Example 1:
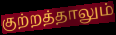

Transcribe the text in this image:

குற்றத்தாலும்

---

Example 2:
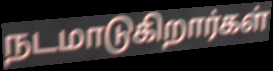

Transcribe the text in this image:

நடமாடுகிறார்கள்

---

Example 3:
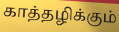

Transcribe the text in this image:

காத்தழிக்கும்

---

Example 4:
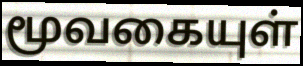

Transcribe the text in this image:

மூவகையுள்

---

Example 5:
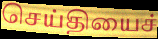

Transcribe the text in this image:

செய்தியைச்